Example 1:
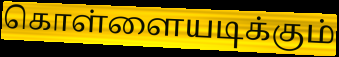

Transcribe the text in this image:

கொள்ளையடிக்கும்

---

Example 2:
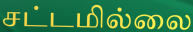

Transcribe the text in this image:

சட்டமில்லை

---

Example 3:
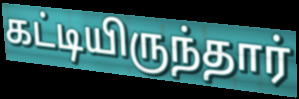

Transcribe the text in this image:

கட்டியிருந்தார்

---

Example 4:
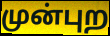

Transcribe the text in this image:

முன்புற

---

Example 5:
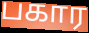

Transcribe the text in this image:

பகார